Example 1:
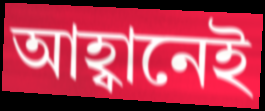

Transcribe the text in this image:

আহ্বানেই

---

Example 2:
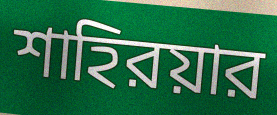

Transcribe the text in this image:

শাহিরয়ার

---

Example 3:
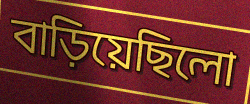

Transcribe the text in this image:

বাড়িয়েছিলো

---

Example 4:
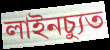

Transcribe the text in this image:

লাইনচ্যুত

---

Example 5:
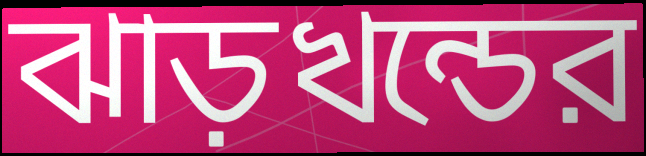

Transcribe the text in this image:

ঝাড়খন্ডের